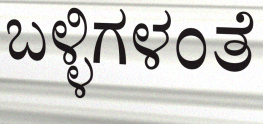
ಬಳ್ಳಿಗಳಂತೆ